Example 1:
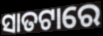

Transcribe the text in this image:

ସାତଟାରେ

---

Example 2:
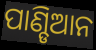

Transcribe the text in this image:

ପାଣ୍ଡିଆନ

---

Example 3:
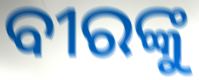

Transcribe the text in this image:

ବୀରଙ୍କୁ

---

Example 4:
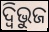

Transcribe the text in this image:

ଦ୍ଵିଭୁଜ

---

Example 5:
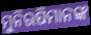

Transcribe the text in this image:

ମୁନିଋଷିମାନଙ୍କ